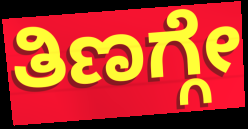
ತಿಣಗ್ಗೇ